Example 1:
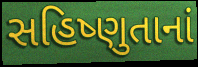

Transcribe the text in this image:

સહિષ્ણુતાનાં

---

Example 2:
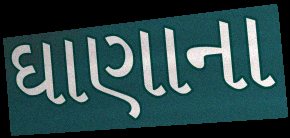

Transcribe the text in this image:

ઘાણાના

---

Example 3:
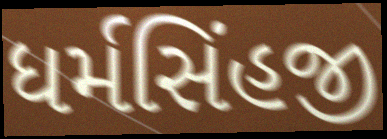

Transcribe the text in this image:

ધર્મસિંહજી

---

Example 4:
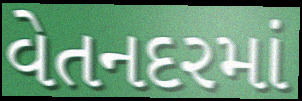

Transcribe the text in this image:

વેતનદરમાં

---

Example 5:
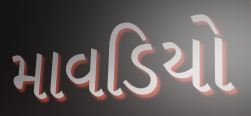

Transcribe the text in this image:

માવડિયો